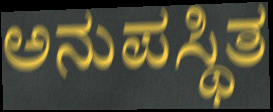
ಅನುಪಸ್ಥಿತ